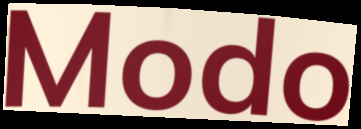
Modo